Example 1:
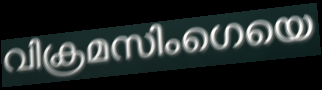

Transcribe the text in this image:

വിക്രമസിംഗെയെ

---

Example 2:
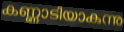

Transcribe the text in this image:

കണ്ണാടിയാകുന്നു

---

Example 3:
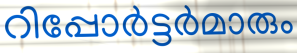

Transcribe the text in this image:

റിപ്പോർട്ടർമാരും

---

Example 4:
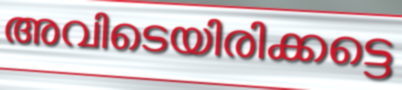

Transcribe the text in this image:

അവിടെയിരിക്കട്ടെ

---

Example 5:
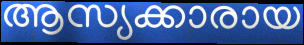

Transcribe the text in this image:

ആസ്യക്കാരായ